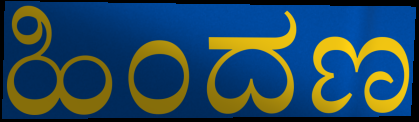
ಹಿಂದಣ